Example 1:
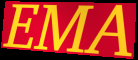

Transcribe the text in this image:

EMA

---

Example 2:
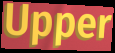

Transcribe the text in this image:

Upper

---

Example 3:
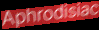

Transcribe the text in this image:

Aphrodisiac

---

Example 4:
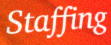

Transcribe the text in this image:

Staffing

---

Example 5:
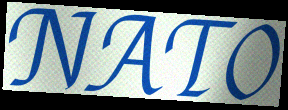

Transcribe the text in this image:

NATO